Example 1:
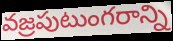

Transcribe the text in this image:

వజ్రపుటుంగరాన్ని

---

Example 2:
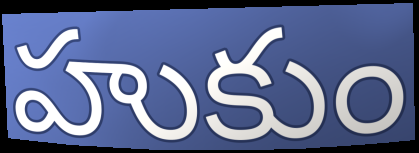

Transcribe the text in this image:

హుకుం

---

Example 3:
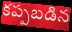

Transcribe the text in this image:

కప్పబడిన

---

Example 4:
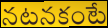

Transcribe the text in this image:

నటనకంటే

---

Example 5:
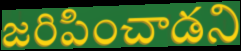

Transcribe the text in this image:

జరిపించాడని